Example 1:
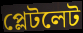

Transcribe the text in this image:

প্লেটলেট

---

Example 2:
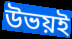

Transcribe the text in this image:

উভয়ই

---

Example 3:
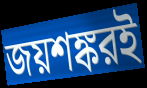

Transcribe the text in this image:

জয়শঙ্করই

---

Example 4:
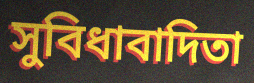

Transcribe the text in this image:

সুবিধাবাদিতা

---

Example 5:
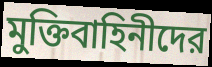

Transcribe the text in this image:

মুক্তিবাহিনীদের